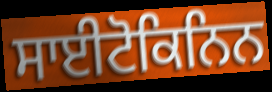
ਸਾਈਟੋਕਿਨਿਨ